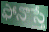
ఫోనొస్తే